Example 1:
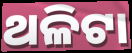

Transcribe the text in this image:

ଥଳିଟା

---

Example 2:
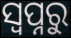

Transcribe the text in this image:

ସ୍ବପ୍ନରୁ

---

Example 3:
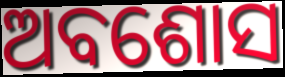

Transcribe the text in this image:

ଅବଶୋସ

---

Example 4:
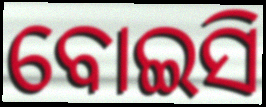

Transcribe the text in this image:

ବୋଇସି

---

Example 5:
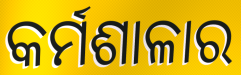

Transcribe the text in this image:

କର୍ମଶାଳାର